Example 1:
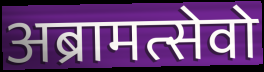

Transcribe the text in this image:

अब्रामत्सेवो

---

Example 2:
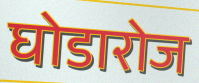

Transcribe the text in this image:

घोडारोज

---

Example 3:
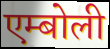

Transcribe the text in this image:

एम्बोली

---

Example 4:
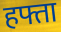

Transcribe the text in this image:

हफ्ता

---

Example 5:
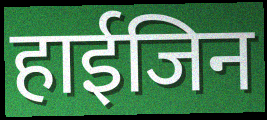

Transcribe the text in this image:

हाईजिन